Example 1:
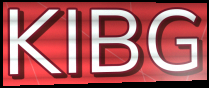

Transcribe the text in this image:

KIBG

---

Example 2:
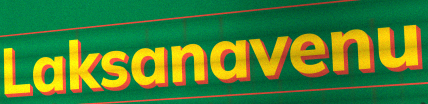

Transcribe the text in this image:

Laksanavenu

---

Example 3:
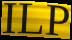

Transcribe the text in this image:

ILP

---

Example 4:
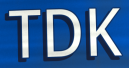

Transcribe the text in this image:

TDK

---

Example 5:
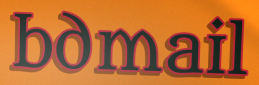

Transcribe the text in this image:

bdmail